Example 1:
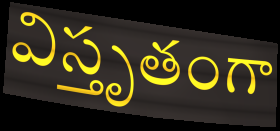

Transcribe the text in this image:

విస్తృతంగా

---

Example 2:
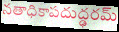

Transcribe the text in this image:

నతాధికాపదుద్ఢరమ్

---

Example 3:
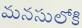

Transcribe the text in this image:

మనసులోకి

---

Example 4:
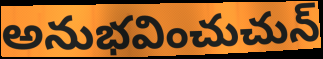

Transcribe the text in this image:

అనుభవించుచున్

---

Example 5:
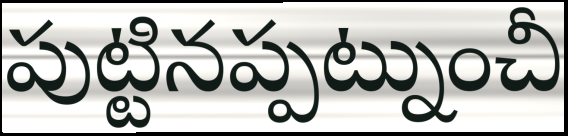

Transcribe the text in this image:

పుట్టినప్పట్నుంచీ